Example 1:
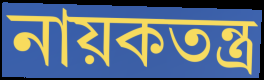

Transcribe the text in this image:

নায়কতন্ত্র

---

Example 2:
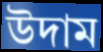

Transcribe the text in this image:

উদাম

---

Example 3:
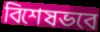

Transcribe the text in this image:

বিশেষভবে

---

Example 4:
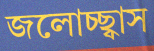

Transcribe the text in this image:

জলোচ্ছ্বাস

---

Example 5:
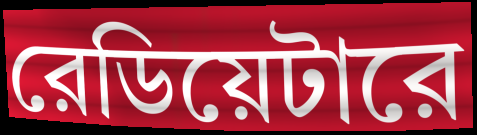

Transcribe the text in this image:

রেডিয়েটারে